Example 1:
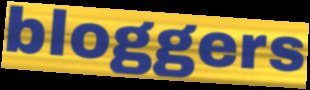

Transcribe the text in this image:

bloggers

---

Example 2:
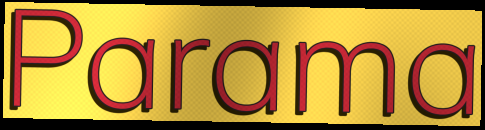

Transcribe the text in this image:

Parama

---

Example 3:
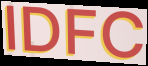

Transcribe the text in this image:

IDFC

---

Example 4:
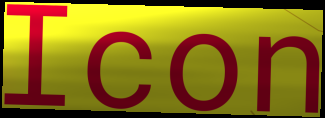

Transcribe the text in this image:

Icon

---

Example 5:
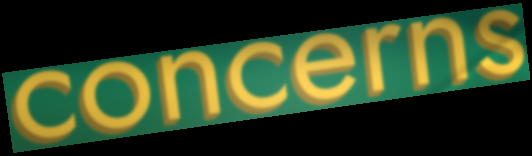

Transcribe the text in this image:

concerns